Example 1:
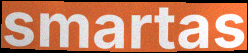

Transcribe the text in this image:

smartas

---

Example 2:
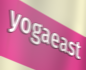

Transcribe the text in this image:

yogaeast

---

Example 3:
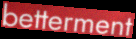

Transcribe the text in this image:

betterment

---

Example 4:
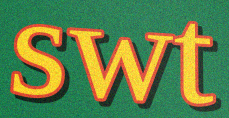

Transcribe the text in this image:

swt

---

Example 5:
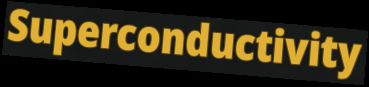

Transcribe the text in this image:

Superconductivity